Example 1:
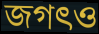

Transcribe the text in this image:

জগৎও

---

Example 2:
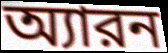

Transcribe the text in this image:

অ্যারন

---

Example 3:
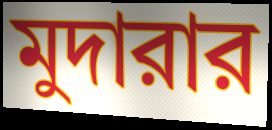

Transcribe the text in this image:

মুদারার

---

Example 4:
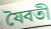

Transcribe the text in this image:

যৈবতী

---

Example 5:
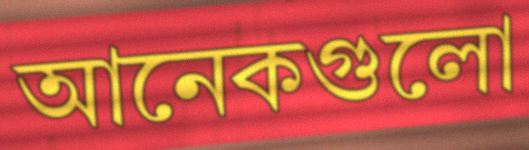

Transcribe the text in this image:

আনেকগুলো